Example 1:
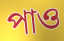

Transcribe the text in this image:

পাও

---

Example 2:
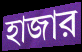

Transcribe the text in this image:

হাজার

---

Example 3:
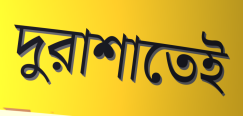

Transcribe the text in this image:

দুরাশাতেই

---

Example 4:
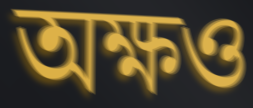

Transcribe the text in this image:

অক্ষও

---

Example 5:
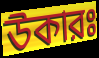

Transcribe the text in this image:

উকারঃ